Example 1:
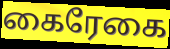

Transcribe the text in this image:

கைரேகை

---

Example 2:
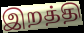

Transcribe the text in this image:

இறத்தி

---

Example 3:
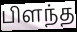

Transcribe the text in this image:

பிளந்த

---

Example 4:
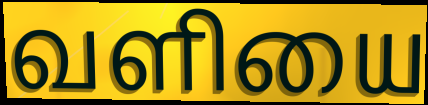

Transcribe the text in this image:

வளியை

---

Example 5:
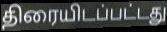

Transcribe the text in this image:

திரையிடப்பட்டது